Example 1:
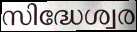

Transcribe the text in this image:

സിദ്ധേശ്വര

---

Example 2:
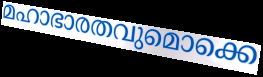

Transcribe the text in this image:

മഹാഭാരതവുമൊക്കെ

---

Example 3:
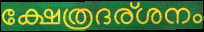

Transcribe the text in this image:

ക്ഷേത്രദര്ശനം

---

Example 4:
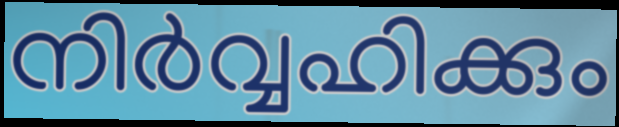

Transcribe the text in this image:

നിർവ്വഹിക്കും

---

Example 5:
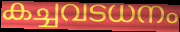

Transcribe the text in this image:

കച്ചവടധനം